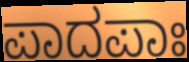
ಪಾದಪಾಃ